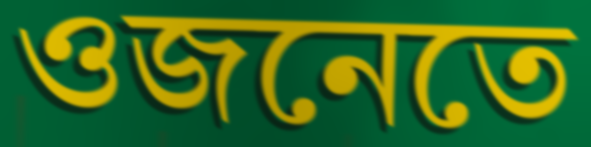
ওজনেতে